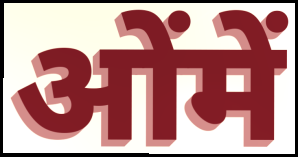
ओंमें